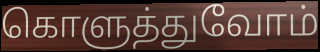
கொளுத்துவோம்